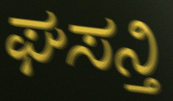
ಘಸನ್ತಿ